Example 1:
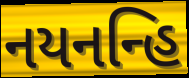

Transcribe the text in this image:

નયનન્હિ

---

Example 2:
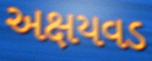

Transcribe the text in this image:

અક્ષયવડ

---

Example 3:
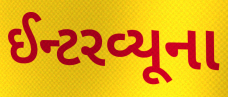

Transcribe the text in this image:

ઈન્ટરવ્યૂના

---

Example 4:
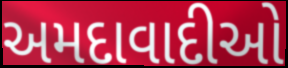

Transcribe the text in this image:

અમદાવાદીઓ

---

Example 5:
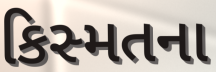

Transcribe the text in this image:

કિસ્મતના